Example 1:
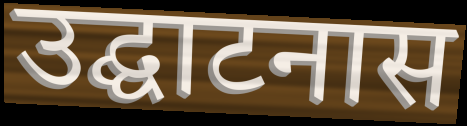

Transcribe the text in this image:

उद्घाटनास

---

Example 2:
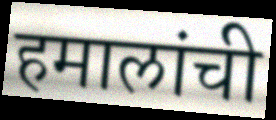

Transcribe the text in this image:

हमालांची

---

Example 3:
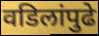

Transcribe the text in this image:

वडिलांपुढे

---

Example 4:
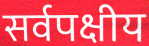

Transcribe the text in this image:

सर्वपक्षीय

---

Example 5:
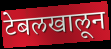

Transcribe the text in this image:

टेबलखालून